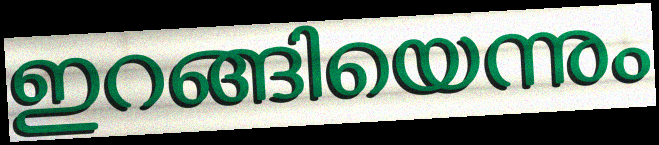
ഇറങ്ങിയെന്നും